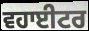
ਵਹਾਈਟਰ